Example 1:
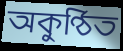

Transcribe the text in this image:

অকুণ্ঠিত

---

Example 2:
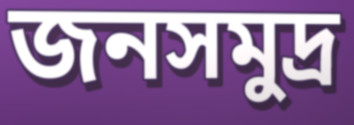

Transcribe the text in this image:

জনসমুদ্র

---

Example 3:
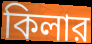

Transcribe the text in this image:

কিলার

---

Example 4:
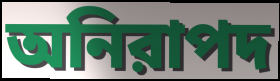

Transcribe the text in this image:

অনিরাপদ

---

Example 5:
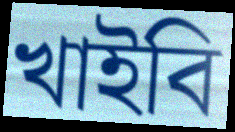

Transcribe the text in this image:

খাইবি